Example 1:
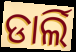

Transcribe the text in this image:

ଡାର୍ଲି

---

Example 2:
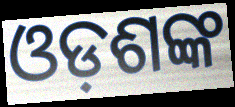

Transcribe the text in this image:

ଓଡ଼ଶଙ୍କ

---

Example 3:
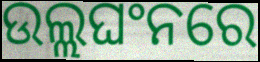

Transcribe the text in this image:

ଉଲ୍ଲଘଂନରେ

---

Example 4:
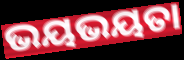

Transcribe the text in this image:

ଭୟଭୟତା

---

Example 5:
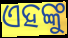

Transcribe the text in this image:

ଏହଙ୍କୁ